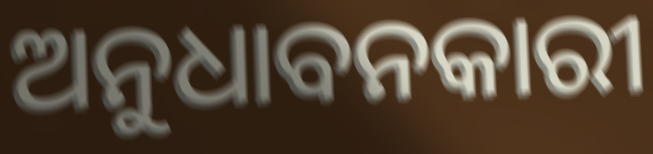
ଅନୁଧାବନକାରୀ